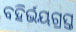
ବହିର୍ଭୟଗ୍ରସ୍ତ